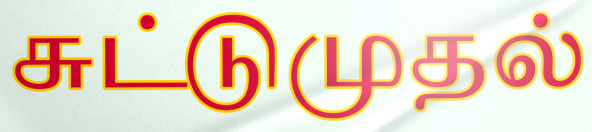
சுட்டுமுதல்